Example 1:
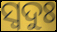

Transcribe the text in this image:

ସ୍ବଦୁଃ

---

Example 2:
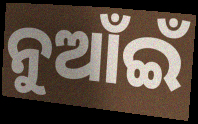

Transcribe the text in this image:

ନୁଆଁଇଁ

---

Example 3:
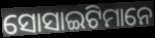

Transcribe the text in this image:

ସୋସାଇଟିମାନେ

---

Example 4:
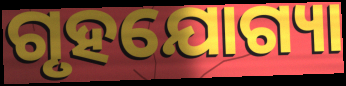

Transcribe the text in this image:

ଗୃହଯୋଗ୍ୟା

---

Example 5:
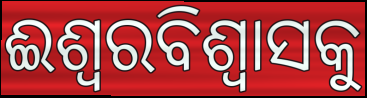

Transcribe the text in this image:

ଈଶ୍ୱରବିଶ୍ଵାସକୁ